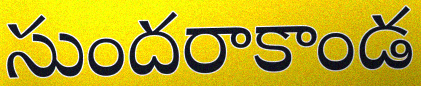
సుందరాకాండ